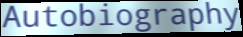
Autobiography